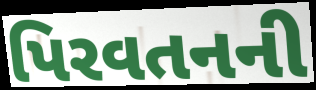
પિરવતનની